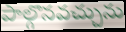
పాల్గొనవచ్చును